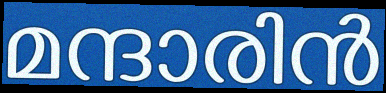
മന്ദാരിൻ